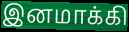
இனமாக்கி